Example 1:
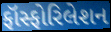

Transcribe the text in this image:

ફૉસ્ફોરિલેશન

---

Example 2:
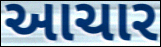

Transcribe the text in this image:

આચાર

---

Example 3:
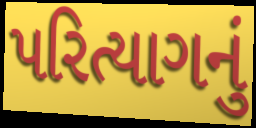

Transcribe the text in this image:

પરિત્યાગનું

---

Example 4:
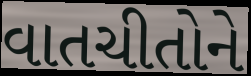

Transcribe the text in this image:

વાતચીતોને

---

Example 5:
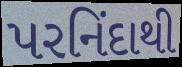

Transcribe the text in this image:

પરનિંદાથી